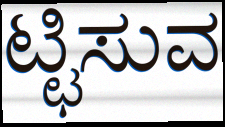
ಟ್ಟಿಸುವ